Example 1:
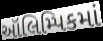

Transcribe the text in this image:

ઑલિમ્પિકમાં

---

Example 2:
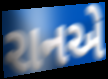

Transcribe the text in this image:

રાનએ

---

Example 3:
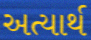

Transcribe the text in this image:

અત્યાર્થ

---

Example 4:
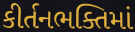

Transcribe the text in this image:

કીર્તનભક્તિમાં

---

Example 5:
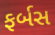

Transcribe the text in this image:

ફર્બસ